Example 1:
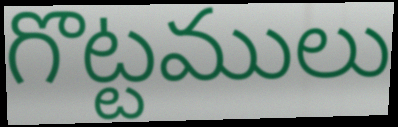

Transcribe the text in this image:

గొట్టములు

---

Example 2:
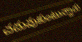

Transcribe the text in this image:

చదువుకుంటున్నారు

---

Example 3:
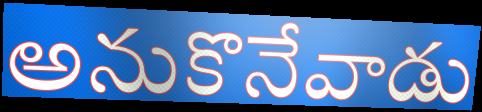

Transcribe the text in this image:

అనుకొనేవాడు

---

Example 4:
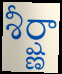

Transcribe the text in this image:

శీర్ష్ణా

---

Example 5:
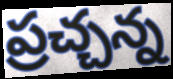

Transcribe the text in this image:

ప్రచ్చన్న